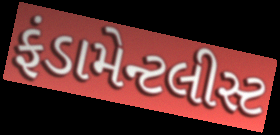
ફંડામેન્ટલીસ્ટ